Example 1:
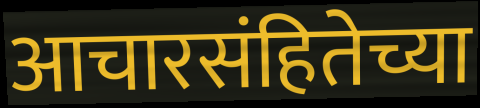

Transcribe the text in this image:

आचारसंहितेच्या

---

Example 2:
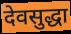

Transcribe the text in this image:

देवसुद्धा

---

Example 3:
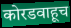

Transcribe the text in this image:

कोरडवाहूच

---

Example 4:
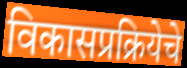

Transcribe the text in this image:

विकासप्रक्रियेचे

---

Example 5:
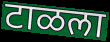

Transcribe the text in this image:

टाळला